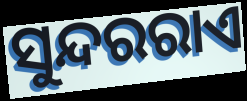
ସୁନ୍ଦରରାଏ